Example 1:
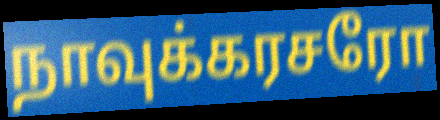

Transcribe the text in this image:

நாவுக்கரசரோ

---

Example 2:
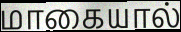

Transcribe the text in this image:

மாகையால்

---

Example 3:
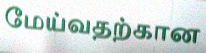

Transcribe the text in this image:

மேய்வதற்கான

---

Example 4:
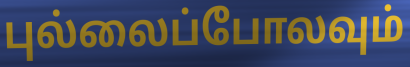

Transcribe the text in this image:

புல்லைப்போலவும்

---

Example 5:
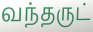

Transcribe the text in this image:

வந்தருட்